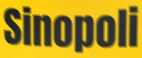
Sinopoli